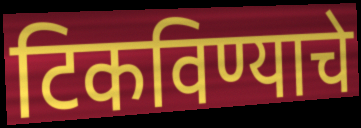
टिकविण्याचे